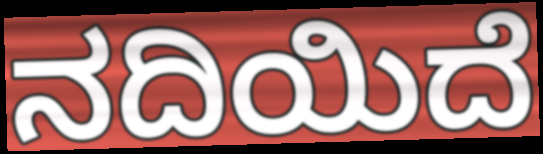
ನದಿಯಿದೆ